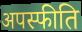
अपस्फीति